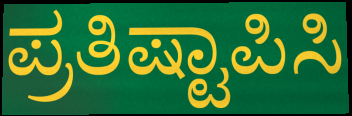
ಪ್ರತಿಷ್ಟಾಪಿಸಿ